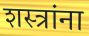
शस्त्रांना